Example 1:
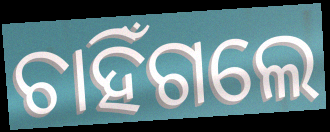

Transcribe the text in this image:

ଚାହିଁଗଲେ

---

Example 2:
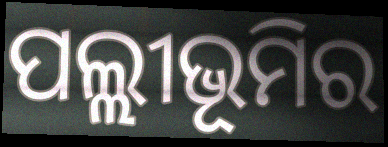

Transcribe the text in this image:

ପଲ୍ଲୀଭୂମିର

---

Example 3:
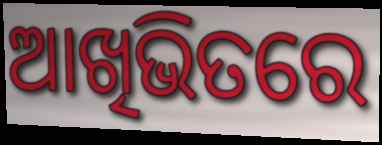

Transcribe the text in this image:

ଆଖିଭିତରେ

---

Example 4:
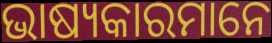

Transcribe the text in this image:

ଭାଷ୍ୟକାରମାନେ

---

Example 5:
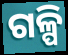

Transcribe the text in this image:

ଗଳ୍ପି